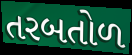
તરબતોળ